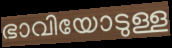
ഭാവിയോടുള്ള